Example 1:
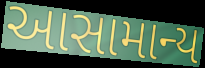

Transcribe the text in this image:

આસામાન્ય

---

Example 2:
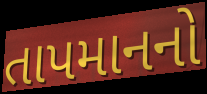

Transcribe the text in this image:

તાપમાનનો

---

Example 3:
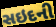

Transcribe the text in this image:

સઇદની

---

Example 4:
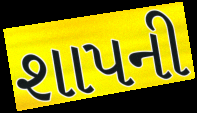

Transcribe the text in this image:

શાપની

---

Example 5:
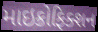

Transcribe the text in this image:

માઇક્રોફિક્શન